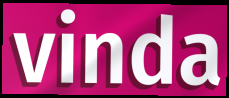
vinda